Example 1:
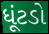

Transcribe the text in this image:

ધૂંટડો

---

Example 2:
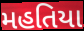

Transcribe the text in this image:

મહતિયા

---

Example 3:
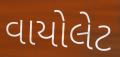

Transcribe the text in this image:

વાયોલેટ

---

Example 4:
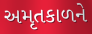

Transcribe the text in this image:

અમૃતકાળને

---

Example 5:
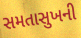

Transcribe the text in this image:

સમતાસુખની